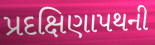
પ્રદક્ષિણાપથની